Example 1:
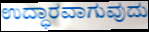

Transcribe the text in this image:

ಉದ್ಧಾರವಾಗುವುದು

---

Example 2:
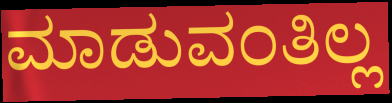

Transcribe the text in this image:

ಮಾಡುವಂತಿಲ್ಲ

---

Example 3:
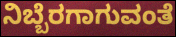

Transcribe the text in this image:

ನಿಬ್ಬೆರಗಾಗುವಂತೆ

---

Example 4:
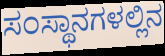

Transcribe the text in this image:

ಸಂಸ್ಥಾನಗಳಲ್ಲಿನ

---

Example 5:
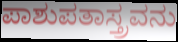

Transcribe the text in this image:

ಪಾಶುಪತಾಸ್ತ್ರವನು